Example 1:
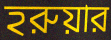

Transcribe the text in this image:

হরুয়ার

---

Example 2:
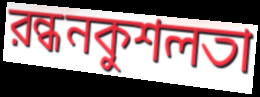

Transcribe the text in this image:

রন্ধনকুশলতা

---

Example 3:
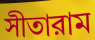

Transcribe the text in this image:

সীতারাম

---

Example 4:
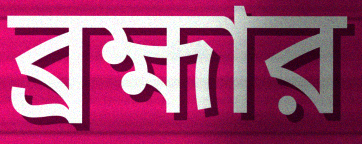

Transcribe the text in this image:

ব্রহ্মার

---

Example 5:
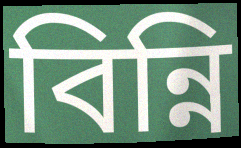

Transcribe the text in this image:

বিন্নি